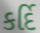
કર્દિ